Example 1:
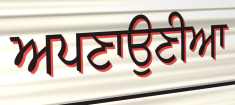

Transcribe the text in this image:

ਅਪਣਾਉਣੀਆ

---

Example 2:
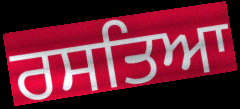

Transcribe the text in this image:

ਰਸਤਿਆ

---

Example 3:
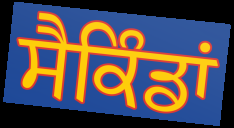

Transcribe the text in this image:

ਸੈਕਿੰਡਾਂ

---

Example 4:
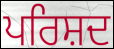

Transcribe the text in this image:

ਪਰਿਸ਼ਦ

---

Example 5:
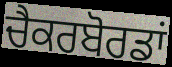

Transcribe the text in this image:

ਚੈਕਰਬੋਰਡਾਂ